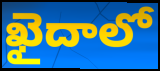
ఖైదాలో